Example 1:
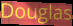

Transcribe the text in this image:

Douglas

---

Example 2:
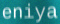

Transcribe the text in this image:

eniya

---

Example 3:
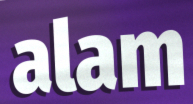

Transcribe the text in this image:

alam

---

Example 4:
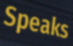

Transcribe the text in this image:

Speaks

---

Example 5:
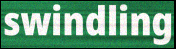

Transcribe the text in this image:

swindling